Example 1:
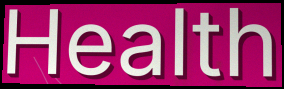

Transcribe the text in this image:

Health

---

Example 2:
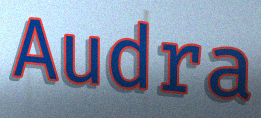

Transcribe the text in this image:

Audra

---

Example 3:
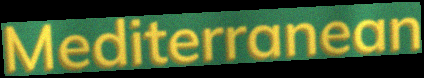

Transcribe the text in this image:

Mediterranean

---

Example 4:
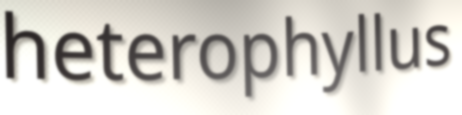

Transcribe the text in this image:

heterophyllus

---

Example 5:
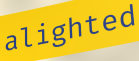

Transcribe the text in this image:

alighted